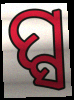
ପ୍ସ